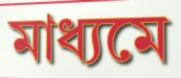
মাধ্যমে